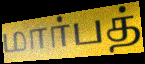
மார்பத்